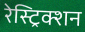
रेस्ट्रिक्शन